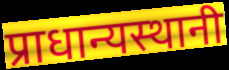
प्राधान्यस्थानी